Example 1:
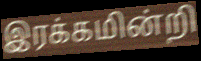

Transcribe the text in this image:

இரக்கமின்றி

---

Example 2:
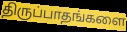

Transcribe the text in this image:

திருப்பாதங்களை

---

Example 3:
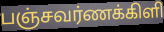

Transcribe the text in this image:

பஞ்சவர்ணக்கிளி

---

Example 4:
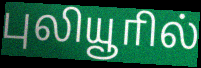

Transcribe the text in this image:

புலியூரில்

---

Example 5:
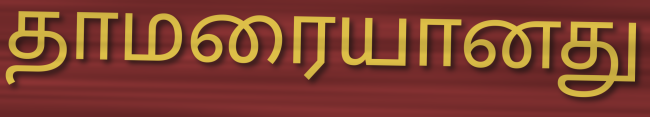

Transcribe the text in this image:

தாமரையானது